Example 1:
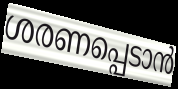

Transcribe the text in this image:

ശരണപ്പെടാൻ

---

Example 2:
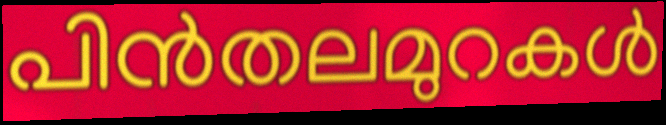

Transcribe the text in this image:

പിൻതലമുറകൾ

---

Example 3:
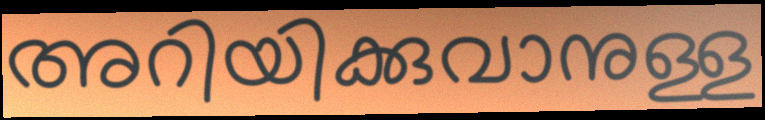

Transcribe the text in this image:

അറിയിക്കുവാനുള്ള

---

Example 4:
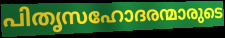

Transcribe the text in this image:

പിതൃസഹോദരന്മാരുടെ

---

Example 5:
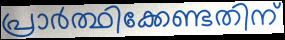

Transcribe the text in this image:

പ്രാർത്ഥിക്കേണ്ടതിന്